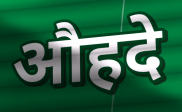
औहदे